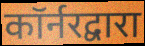
कॉर्नरद्वारा